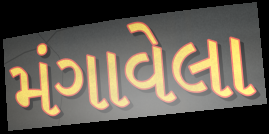
મંગાવેલા